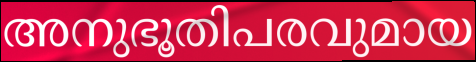
അനുഭൂതിപരവുമായ